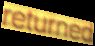
returned